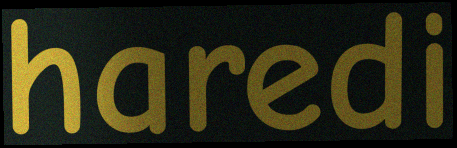
haredi